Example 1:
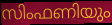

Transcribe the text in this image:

സിംഫണിയും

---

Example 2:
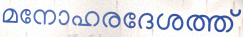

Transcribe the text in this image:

മനോഹരദേശത്ത്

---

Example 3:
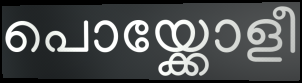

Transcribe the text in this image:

പൊയ്ക്കോളീ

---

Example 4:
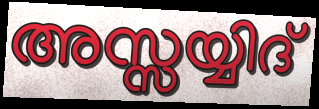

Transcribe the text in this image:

അസ്സയ്യിദ്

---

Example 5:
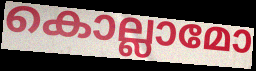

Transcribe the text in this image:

കൊല്ലാമോ